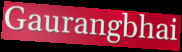
Gaurangbhai